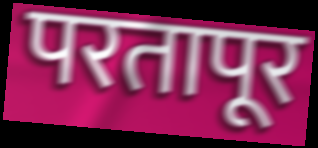
परतापूर